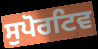
ਸੁਪੋਰਟਿਵ